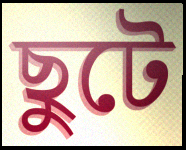
ছুটে